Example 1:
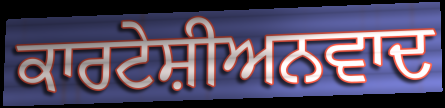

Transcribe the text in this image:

ਕਾਰਟੇਸ਼ੀਅਨਵਾਦ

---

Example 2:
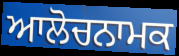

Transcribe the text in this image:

ਆਲੋਚਨਾਮਕ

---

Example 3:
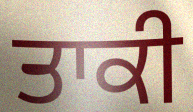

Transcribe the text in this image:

ਤਾਕੀ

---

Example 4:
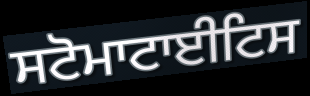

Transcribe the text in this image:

ਸਟੋਮਾਟਾਈਟਿਸ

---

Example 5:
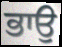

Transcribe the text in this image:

ਭਾਉ